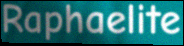
Raphaelite